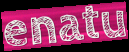
enatu